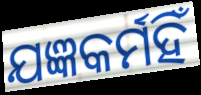
ଯଜ୍ଞକର୍ମହିଁ